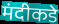
मंदीकडे